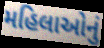
મહિલાઓનું